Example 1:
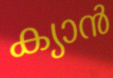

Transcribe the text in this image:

ക്യാൻ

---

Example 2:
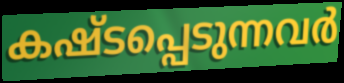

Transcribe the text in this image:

കഷ്ടപ്പെടുന്നവർ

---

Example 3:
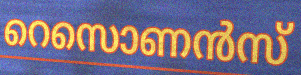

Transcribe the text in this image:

റെസൊണൻസ്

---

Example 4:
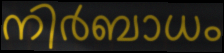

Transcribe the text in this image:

നിർബാധം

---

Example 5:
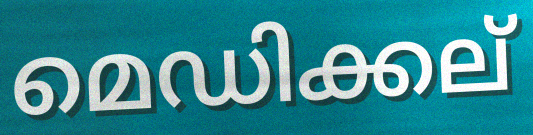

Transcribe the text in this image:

മെഡിക്കല്